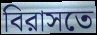
বিরাসতে